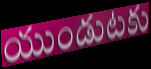
యుండుటకు